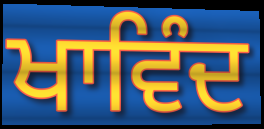
ਖਾਵਿੰਦ